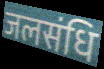
जलसंधि